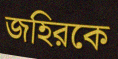
জহিরকে